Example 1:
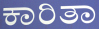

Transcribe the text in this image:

ಕಾರಿತಾ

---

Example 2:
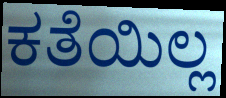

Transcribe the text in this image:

ಕತೆಯಿಲ್ಲ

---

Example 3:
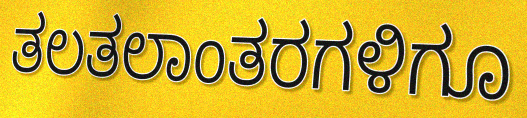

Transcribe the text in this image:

ತಲತಲಾಂತರಗಳಿಗೂ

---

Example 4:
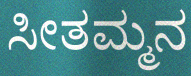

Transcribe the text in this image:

ಸೀತಮ್ಮನ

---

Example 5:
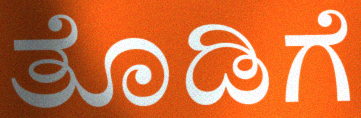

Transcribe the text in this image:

ತೊಡಿಗೆ